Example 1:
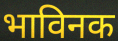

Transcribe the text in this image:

भाविनक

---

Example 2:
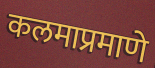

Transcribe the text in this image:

कलमाप्रमाणे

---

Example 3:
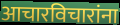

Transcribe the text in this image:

आचारविचारांना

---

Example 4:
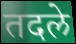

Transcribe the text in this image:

तदले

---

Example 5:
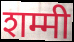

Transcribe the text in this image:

शम्मी